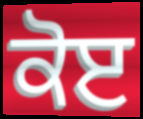
ਕੋੲ